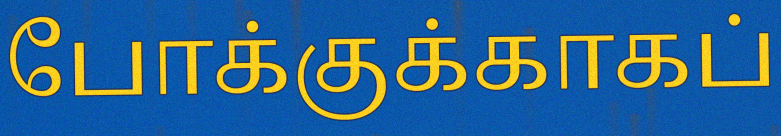
போக்குக்காகப்